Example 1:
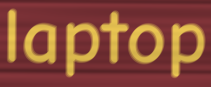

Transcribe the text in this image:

laptop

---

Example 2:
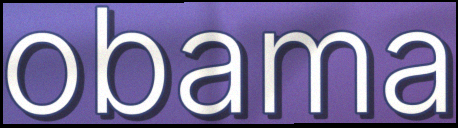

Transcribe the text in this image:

obama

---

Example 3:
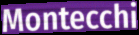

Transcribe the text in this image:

Montecchi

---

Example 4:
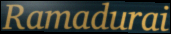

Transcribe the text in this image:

Ramadurai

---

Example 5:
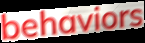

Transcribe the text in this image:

behaviors